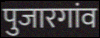
पुजारगांव